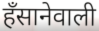
हँसानेवाली